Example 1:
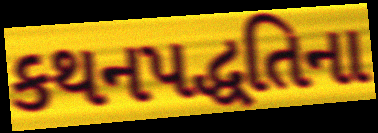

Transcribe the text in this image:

કથનપદ્ધતિના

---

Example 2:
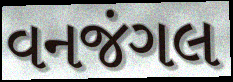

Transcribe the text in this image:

વનજંગલ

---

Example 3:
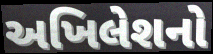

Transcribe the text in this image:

અખિલેશનો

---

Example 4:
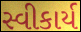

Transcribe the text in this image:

સ્વીકાર્ય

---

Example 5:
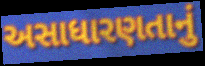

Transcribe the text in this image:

અસાધારણતાનું